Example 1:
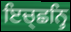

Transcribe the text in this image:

ਇਚ੍ਛਨ੍ਤਿ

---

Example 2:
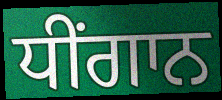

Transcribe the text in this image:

ਧੀਂਗਾਨ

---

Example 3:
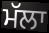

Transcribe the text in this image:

ਮੱਲਾ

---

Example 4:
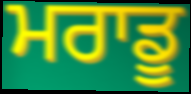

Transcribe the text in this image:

ਮਰਾਡੂ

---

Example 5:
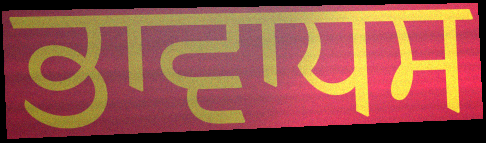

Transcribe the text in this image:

ਭਾਵਾਧਸ